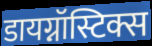
डायग्नॉस्टिक्स